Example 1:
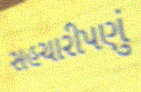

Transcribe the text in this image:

સહચારીપણું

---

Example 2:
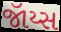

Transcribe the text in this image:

જૉય્સ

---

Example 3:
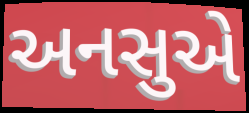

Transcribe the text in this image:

અનસુએ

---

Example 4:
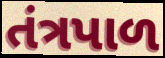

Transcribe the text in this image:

તંત્રપાળ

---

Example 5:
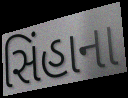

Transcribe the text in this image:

સિંહાના